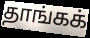
தாங்கக்